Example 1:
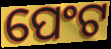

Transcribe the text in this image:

ପେଂଟ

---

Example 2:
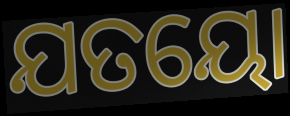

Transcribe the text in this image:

ଯତୟୋ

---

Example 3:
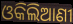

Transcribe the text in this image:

ଓକିଲିଆଣୀ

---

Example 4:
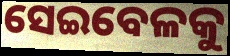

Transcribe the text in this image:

ସେଇବେଳକୁ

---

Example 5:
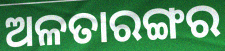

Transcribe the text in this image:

ଅଳତାରଙ୍ଗର